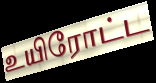
உயிரோட்ட